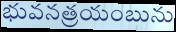
భువనత్రయంబును